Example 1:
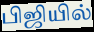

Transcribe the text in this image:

பிஜியில்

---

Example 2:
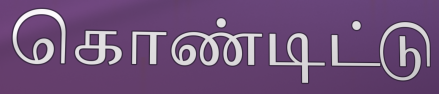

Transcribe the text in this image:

கொண்டிட்டு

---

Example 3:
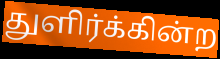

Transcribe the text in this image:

துளிர்க்கின்ற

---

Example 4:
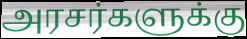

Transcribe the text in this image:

அரசர்களுக்கு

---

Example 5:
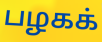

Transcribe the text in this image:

பழகக்